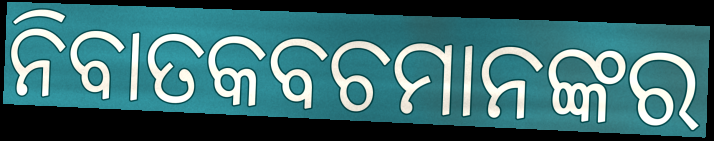
ନିବାତକବଚମାନଙ୍କର